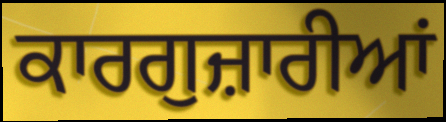
ਕਾਰਗੁਜ਼ਾਰੀਆਂ